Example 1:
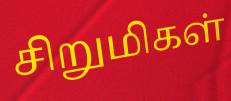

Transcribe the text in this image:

சிறுமிகள்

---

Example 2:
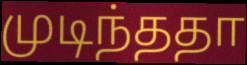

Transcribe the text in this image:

முடிந்ததா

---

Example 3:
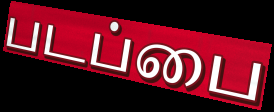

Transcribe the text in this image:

படப்பை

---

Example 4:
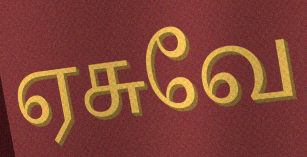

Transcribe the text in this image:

ஏசுவே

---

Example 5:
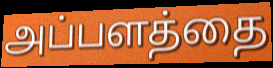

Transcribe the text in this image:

அப்பளத்தை